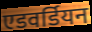
एडवर्डियन